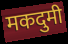
मकदुमी